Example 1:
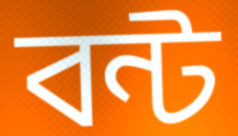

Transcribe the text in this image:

বন্ট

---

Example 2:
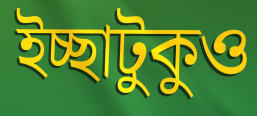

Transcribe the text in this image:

ইচ্ছাটুকুও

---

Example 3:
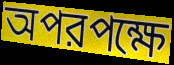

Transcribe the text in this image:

অপরপক্ষে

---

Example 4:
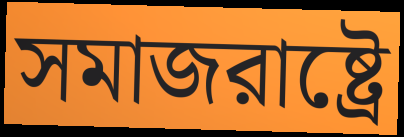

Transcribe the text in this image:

সমাজরাষ্ট্রে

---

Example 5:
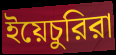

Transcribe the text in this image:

ইয়েচুরিরা